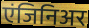
एंजिनिअर